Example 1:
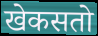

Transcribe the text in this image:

खेकसतो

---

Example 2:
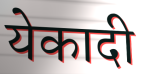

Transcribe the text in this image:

येकादी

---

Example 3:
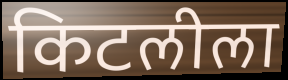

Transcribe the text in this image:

किटलीला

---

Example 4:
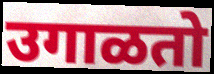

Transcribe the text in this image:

उगाळतो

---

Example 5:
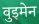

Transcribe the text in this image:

वुइमेन